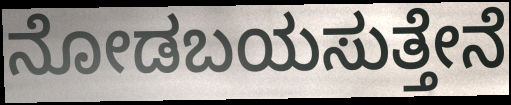
ನೋಡಬಯಸುತ್ತೇನೆ